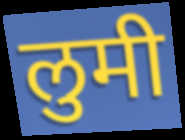
लुमी